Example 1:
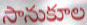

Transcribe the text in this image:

సానుకూల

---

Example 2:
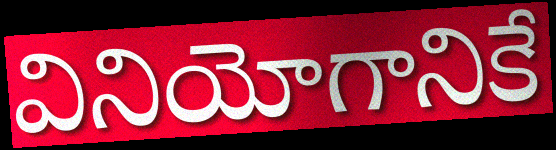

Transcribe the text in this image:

వినియోగానికే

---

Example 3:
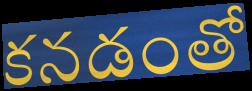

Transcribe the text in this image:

కనడంతో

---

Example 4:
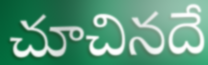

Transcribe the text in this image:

చూచినదే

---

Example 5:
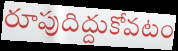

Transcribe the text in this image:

రూపుదిద్దుకోవటం